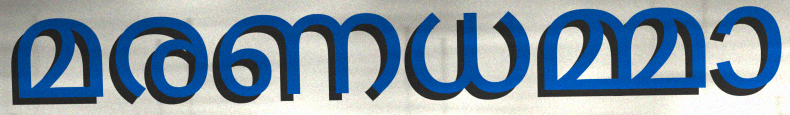
മരണധമ്മാ